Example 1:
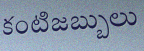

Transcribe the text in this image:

కంటిజబ్బులు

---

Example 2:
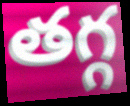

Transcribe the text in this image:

తగ్గ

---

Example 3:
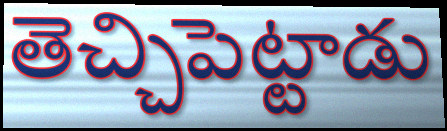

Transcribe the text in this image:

తెచ్చిపెట్టాడు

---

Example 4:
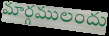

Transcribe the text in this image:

మార్గములందు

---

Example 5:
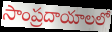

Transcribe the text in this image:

సాంప్రదాయాలలో